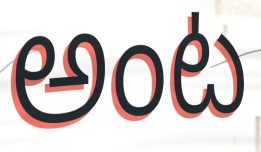
అంట